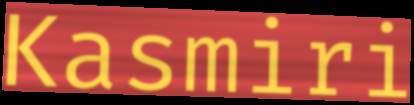
Kasmiri